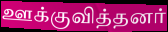
ஊக்குவித்தனர்